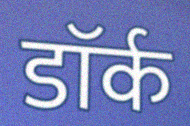
डॉर्क